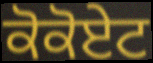
ਕੋਕੋਏਟ